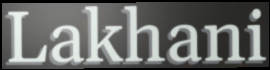
Lakhani